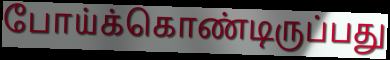
போய்க்கொண்டிருப்பது